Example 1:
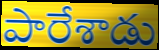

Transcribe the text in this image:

పారేశాడు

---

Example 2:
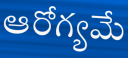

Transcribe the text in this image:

ఆరోగ్యమే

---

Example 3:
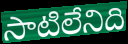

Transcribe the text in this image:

సాటిలేనిది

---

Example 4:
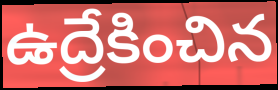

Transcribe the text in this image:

ఉద్రేకించిన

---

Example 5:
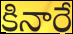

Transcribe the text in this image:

కినారే